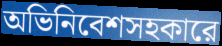
অভিনিবেশসহকারে